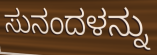
ಸುನಂದಳನ್ನು